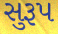
સુરૂપ